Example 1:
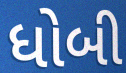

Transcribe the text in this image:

ધોબી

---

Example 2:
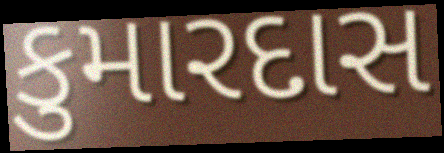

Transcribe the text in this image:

કુમારદાસ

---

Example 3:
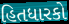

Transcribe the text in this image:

હિતધારકો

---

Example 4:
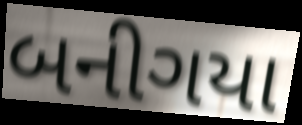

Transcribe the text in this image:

બનીગયા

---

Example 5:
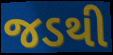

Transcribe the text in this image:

જડથી